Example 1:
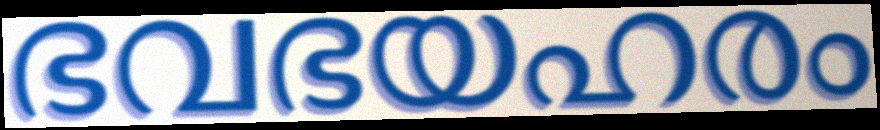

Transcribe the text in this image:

ഭവഭയഹരം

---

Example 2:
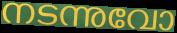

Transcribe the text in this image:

നടന്നുവോ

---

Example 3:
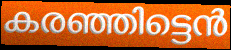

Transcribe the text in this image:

കരഞ്ഞിട്ടെൻ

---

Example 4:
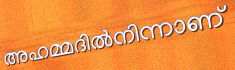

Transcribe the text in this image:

അഹമ്മദിൽനിന്നാണ്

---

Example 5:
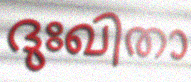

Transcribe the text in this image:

ദുഃഖിതാ